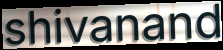
shivanand